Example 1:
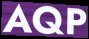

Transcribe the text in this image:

AQP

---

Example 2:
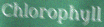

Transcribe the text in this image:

Chlorophyll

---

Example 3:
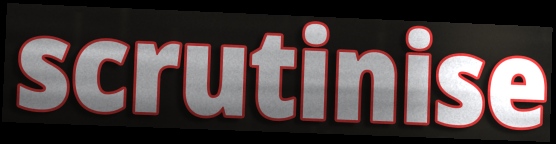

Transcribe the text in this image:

scrutinise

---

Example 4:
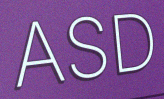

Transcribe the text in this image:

ASD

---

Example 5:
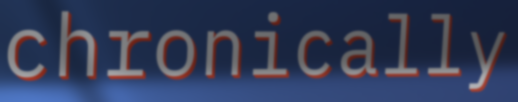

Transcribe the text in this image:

chronically